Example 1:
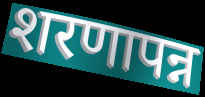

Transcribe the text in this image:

शरणापन्न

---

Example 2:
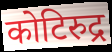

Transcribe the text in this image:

कोटिरुद्र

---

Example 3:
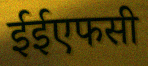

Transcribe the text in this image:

ईईएफसी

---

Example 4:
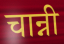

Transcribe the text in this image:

चान्नी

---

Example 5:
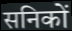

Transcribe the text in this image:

सनिकों